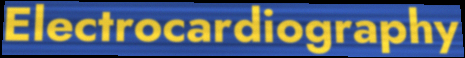
Electrocardiography